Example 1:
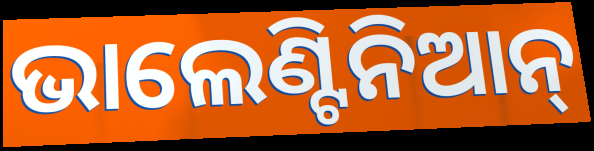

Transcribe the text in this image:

ଭାଲେଣ୍ଟିନିଆନ୍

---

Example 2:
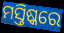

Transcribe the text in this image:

ମସ୍ତିଷ୍କରେ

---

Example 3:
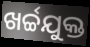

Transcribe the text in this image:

ଖର୍ଚ୍ଚଯୁକ୍ତ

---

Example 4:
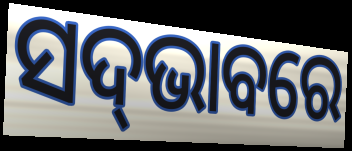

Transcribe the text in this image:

ସଦ୍‌ଭାବରେ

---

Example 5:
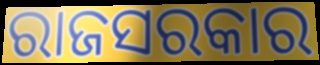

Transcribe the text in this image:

ରାଜସରକାର